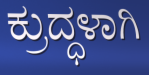
ಕ್ರುದ್ಧಳಾಗಿ